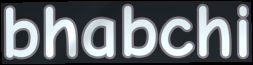
bhabchi